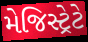
મેજિસ્ટ્રેટે